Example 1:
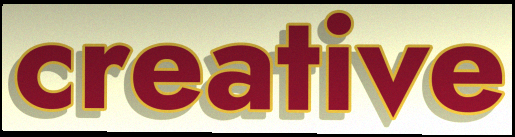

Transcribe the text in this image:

creative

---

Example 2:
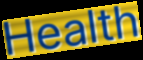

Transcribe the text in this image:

Health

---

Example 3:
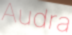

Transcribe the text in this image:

Audra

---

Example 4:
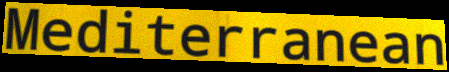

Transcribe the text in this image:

Mediterranean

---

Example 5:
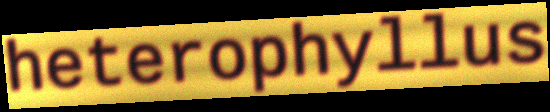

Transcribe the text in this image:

heterophyllus